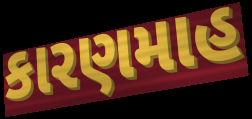
કારણમાહ